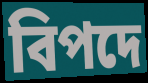
বিপদে